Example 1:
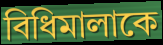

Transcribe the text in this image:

বিধিমালাকে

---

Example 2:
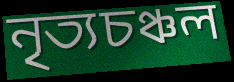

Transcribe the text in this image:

নৃত্যচঞ্চল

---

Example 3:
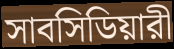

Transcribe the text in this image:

সাবসিডিয়ারী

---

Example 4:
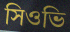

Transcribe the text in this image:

সিওভি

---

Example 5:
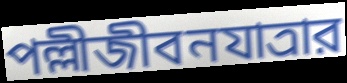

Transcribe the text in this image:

পল্লীজীবনযাত্রার